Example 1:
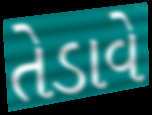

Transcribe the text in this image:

તેડાવે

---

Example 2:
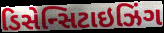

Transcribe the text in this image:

ડિસેન્સિટાઇઝિંગ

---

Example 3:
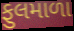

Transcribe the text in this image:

ફુલમાળા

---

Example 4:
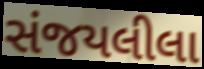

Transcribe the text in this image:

સંજયલીલા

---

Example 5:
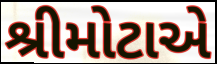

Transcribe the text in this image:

શ્રીમોટાએ